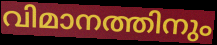
വിമാനത്തിനും